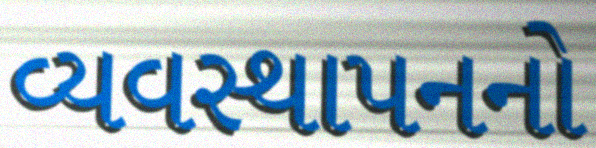
વ્યવસ્થાપનનો